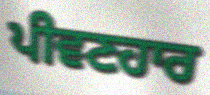
ਪੀਵਣਹਾਰ